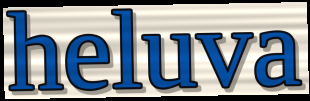
heluva